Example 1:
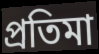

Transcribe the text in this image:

প্রতিমা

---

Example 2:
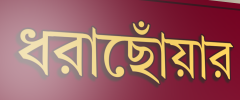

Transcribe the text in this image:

ধরাছোঁয়ার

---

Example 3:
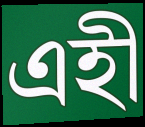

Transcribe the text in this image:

এহী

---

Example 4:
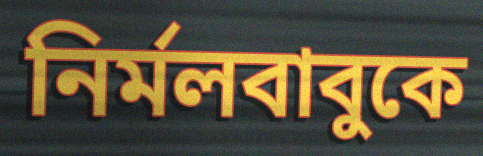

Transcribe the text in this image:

নির্মলবাবুকে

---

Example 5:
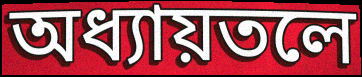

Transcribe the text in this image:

অধ্যায়তলে